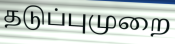
தடுப்புமுறை